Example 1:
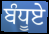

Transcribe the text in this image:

ਬੰਧੂਏ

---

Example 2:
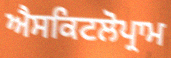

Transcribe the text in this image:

ਐਸਕਿਟਲੋਪ੍ਰਾਮ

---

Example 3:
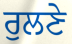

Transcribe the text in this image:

ਰੁਲਣੇ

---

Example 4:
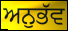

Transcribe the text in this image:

ਅਨੁਭੱਵ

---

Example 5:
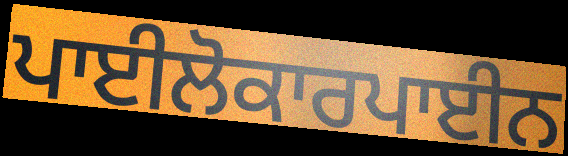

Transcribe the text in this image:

ਪਾਈਲੋਕਾਰਪਾਈਨ